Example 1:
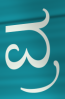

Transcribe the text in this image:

ವ್ರ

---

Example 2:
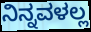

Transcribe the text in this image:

ನಿನ್ನವಳಲ್ಲ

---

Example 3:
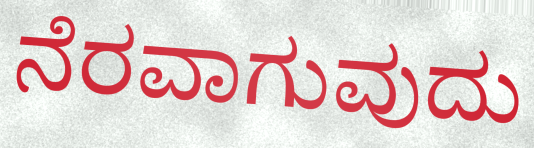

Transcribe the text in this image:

ನೆರವಾಗುವುದು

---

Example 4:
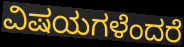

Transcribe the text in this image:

ವಿಷಯಗಳೆಂದರೆ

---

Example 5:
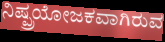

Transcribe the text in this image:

ನಿಷ್ಪ್ರಯೋಜಕವಾಗಿರುವ